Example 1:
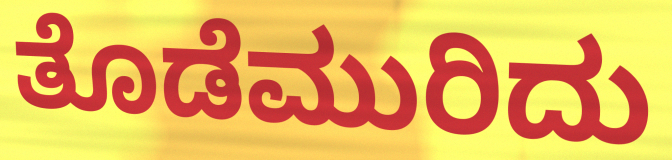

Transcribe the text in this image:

ತೊಡೆಮುರಿದು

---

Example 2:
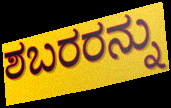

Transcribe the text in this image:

ಶಬರರನ್ನು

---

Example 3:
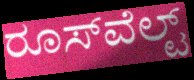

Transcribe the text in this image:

ರೂಸ್‌ವೆಲ್ಟ್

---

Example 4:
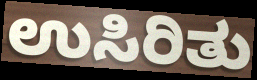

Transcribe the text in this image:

ಉಸಿರಿತು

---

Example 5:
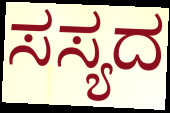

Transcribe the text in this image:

ಸಸ್ಯದ